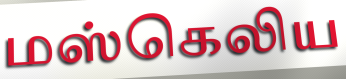
மஸ்கெலிய